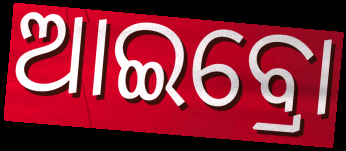
ଆଇବ୍ରୋ